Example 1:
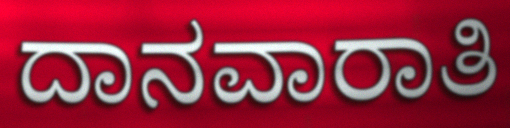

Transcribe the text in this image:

ದಾನವಾರಾತಿ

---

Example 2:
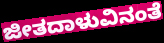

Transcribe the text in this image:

ಜೀತದಾಳುವಿನಂತೆ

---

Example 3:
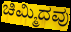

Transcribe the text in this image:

ಚಿಮ್ಮಿದವು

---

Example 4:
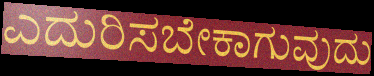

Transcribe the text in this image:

ಎದುರಿಸಬೇಕಾಗುವುದು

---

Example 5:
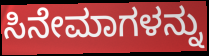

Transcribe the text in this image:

ಸಿನೇಮಾಗಳನ್ನು